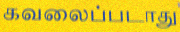
கவலைப்படாது